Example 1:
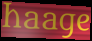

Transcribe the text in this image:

haage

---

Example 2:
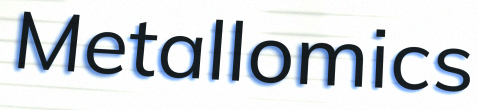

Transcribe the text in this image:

Metallomics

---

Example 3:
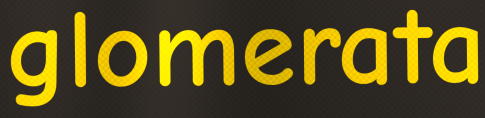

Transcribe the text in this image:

glomerata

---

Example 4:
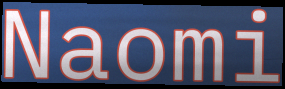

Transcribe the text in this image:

Naomi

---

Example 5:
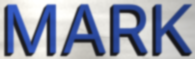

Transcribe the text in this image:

MARK